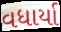
વધાર્યા